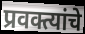
प्रवक्त्यांचे